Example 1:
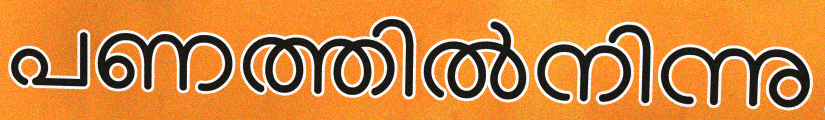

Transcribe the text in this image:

പണത്തിൽനിന്നു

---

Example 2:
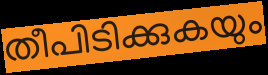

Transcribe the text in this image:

തീപിടിക്കുകയും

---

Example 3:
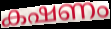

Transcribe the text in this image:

കഷണം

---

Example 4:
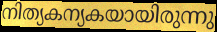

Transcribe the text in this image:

നിത്യകന്യകയായിരുന്നു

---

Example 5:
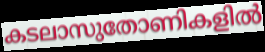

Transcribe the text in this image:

കടലാസുതോണികളിൽ